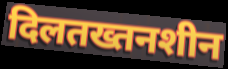
दिलतख्तनशीन